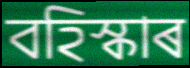
বহিস্কাৰ